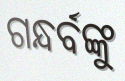
ଗନ୍ଧର୍ବଙ୍କୁ